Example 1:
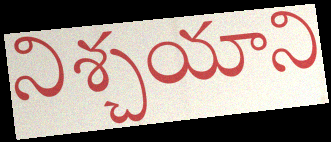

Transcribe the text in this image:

నిశ్చయాని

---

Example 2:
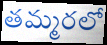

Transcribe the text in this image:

తమ్మరలో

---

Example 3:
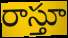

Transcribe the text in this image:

రాస్తూ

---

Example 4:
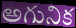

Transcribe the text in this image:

అగునిక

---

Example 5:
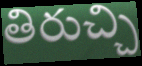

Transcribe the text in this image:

తిరుచ్చి